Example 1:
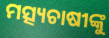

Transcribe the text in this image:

ମତ୍ସ୍ୟଚାଷୀଙ୍କୁ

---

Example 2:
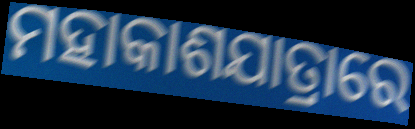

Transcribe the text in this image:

ମହାକାଶଯାତ୍ରାରେ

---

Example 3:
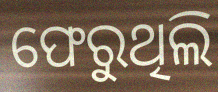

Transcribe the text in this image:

ଫେରୁଥିଲି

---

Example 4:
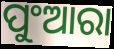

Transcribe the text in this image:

ପୁଂଆରା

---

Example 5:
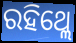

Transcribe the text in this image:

ରହିଥ୍ଲେ